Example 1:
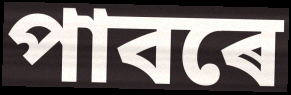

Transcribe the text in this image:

পাবৰে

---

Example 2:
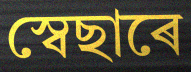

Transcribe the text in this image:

স্বেছাৰে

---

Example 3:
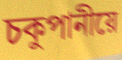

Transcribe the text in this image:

চকুপানীয়ে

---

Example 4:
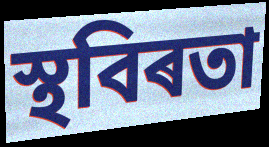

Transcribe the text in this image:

স্থবিৰতা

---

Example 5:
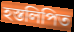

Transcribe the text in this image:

হস্তলিপিত